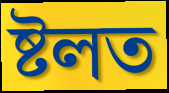
ষ্টলত